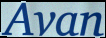
Avan